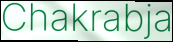
Chakrabja